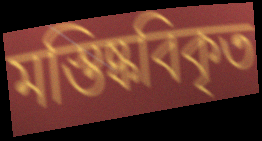
মস্তিষ্কবিকৃত